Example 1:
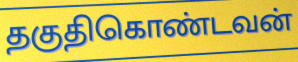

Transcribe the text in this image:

தகுதிகொண்டவன்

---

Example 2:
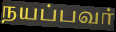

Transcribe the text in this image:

நயப்பவர்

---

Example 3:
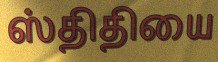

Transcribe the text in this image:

ஸ்திதியை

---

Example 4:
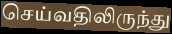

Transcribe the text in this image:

செய்வதிலிருந்து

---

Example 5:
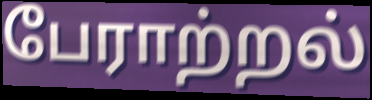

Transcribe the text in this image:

பேராற்றல்